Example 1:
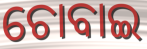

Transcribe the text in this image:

ଚୋବାଇ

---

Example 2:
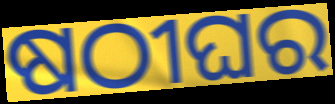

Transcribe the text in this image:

ଷଠୀଘର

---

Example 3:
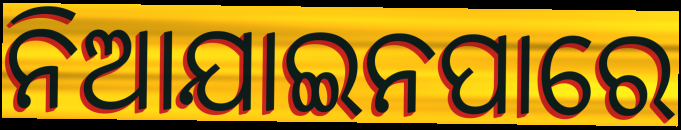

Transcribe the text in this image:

ନିଆଯାଇନପାରେ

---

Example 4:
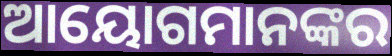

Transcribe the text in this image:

ଆୟୋଗମାନଙ୍କର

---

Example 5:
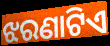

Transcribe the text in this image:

ଝରଣାଟିଏ